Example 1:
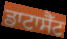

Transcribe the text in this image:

ਡਾਟਾਸੈੱਟ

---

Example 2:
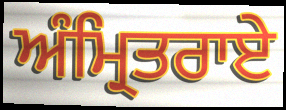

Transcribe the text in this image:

ਅੰਮ੍ਰਿਤਰਾਏ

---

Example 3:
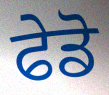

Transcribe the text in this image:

ਫੇਡੋ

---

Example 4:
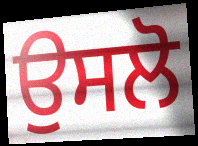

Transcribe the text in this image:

ਉਸਲੋ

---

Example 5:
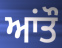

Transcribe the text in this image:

ਆਂਤੌ